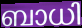
ബാധി